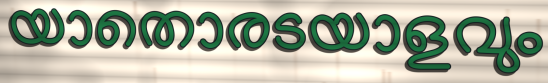
യാതൊരടയാളവും